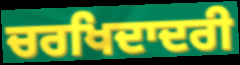
ਚਰਖਿਦਾਦਰੀ